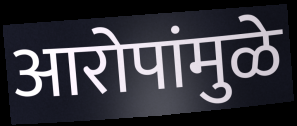
आरोपांमुळे